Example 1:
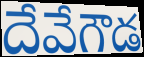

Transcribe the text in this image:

దేవేగౌడ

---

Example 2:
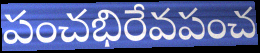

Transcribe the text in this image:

పంచభిరేవపంచ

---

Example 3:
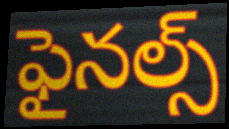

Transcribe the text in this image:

ఫైనల్స్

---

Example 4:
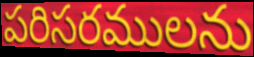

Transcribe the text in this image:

పరిసరములను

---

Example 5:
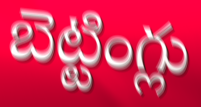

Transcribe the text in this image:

బెట్టింగ్లు